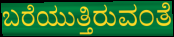
ಬರೆಯುತ್ತಿರುವಂತೆ